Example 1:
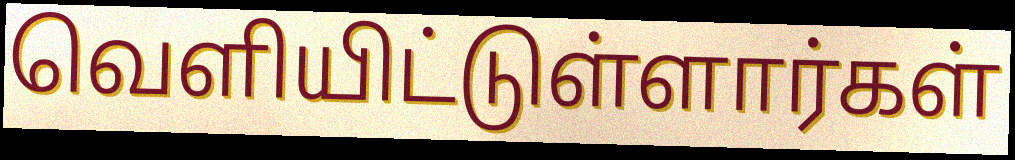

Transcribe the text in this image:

வெளியிட்டுள்ளார்கள்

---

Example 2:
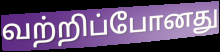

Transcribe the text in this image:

வற்றிப்போனது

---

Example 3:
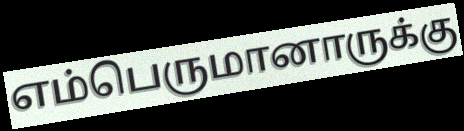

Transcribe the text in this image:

எம்பெருமானாருக்கு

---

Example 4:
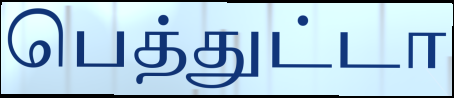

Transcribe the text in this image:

பெத்துட்டா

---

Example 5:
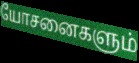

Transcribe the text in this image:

யோசனைகளும்